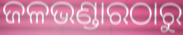
ଜଳଭଣ୍ଡାରଠାରୁ